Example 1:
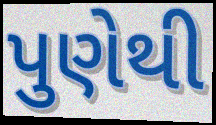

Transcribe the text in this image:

પુણેથી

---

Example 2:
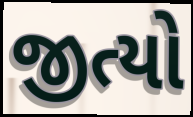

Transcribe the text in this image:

જીત્યો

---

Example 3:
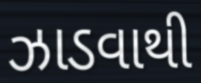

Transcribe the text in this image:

ઝાડવાથી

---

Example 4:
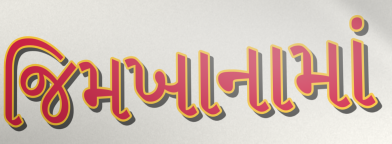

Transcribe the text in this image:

જિમખાનામાં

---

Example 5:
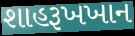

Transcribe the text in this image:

શાહરૂખખાન